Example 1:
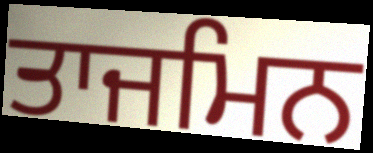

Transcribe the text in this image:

ਤਾਜਮਿਨ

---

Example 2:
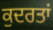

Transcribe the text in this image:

ਕੁਦਰਤਾਂ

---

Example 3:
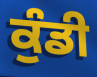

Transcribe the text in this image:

ਕੁੰਡੀ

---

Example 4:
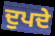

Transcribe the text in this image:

ਦੁਪਦੇ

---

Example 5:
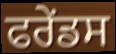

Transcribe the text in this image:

ਫਰੇਂਡਸ